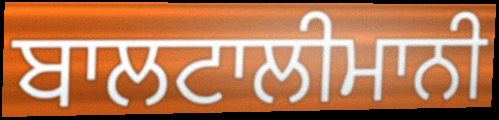
ਬਾਲਟਾਲੀਮਾਨੀ